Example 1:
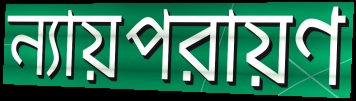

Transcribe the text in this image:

ন্যায়পরায়ণ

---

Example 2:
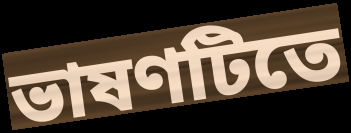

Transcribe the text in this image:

ভাষণটিতে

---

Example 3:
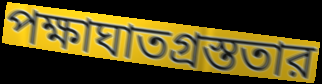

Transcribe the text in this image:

পক্ষাঘাতগ্রস্ততার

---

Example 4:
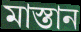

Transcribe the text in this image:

মাস্তান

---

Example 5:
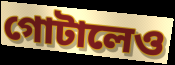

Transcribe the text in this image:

গোটালেও